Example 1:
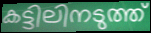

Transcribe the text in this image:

കട്ടിലിനടുത്ത്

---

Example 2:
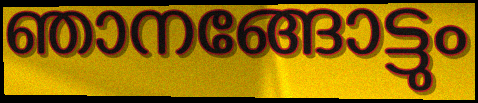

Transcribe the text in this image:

ഞാനങ്ങോട്ടും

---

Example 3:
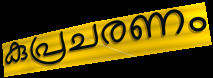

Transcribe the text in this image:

കുപ്രചരണം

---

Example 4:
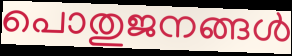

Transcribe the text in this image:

പൊതുജനങ്ങൾ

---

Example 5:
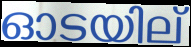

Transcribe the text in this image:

ഓടയില്